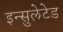
इन्सुलेटेड